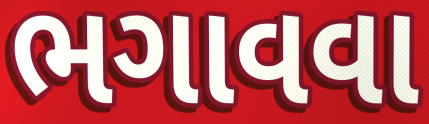
ભગાવવા